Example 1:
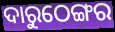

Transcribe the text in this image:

ଦାରୁଠେଙ୍ଗର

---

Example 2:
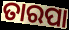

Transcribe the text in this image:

ତାରପା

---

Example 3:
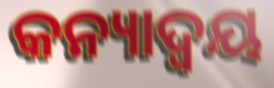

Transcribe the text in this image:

କନ୍ୟାଦ୍ୱୟ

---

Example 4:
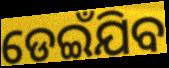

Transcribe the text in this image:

ଡେଇଁଯିବ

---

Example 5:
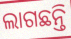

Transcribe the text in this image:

ଲାଗଛନ୍ତି